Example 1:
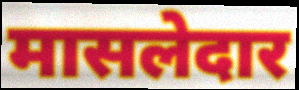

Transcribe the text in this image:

मासलेदार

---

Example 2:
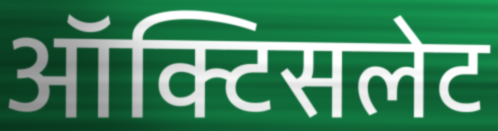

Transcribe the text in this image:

ऑक्टिसलेट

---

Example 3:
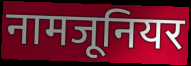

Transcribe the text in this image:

नामजूनियर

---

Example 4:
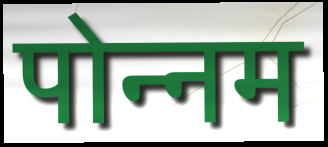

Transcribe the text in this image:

पोन्नम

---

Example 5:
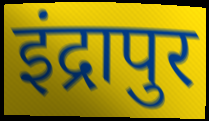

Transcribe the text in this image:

इंद्रापुर